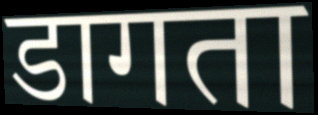
डागता